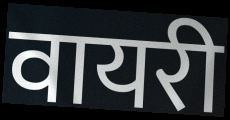
वायरी